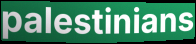
palestinians